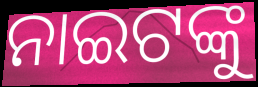
ନାଇଟଙ୍କୁ